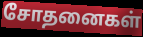
சோதனைகள்